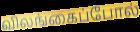
விலங்கைப்போல்